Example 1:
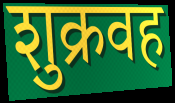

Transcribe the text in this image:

शुक्रवह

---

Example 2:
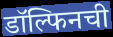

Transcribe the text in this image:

डॉल्फिनची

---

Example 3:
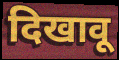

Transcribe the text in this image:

दिखावू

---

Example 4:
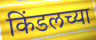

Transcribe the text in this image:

किंडलच्या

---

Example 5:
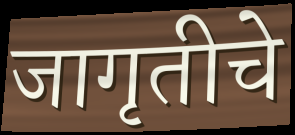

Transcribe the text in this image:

जागृतीचे